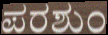
ಪರಶುಂ